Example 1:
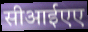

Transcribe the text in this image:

सीआईएए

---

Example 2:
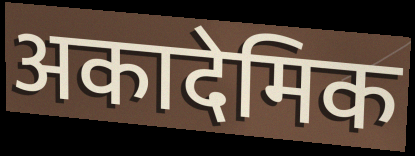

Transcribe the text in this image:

अकादेमिक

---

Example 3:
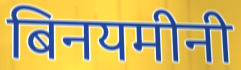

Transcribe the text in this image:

बिनयमीनी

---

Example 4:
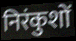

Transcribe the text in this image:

निरंकुशों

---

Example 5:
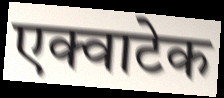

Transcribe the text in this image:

एक्वाटेक